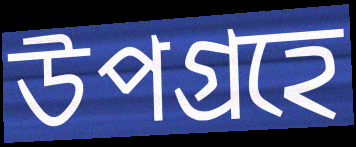
উপগ্রহে